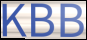
KBB